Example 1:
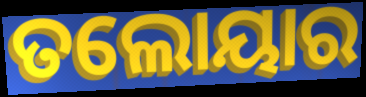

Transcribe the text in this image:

ତଲୋୟାର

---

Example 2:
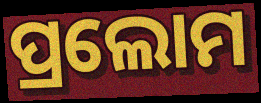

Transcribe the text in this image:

ପ୍ରଲୋମ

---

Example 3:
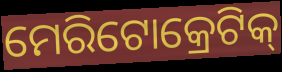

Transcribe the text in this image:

ମେରିଟୋକ୍ରେଟିକ୍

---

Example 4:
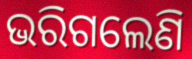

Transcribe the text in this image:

ଭରିଗଲେଣି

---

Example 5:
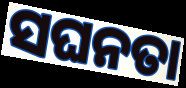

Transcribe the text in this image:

ସଘନତା